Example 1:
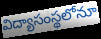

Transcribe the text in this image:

విద్యాసంస్థలోనూ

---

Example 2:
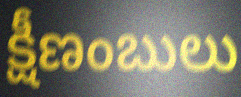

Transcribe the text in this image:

క్షీణంబులు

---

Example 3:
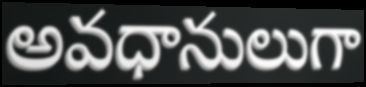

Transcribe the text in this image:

అవధానులుగా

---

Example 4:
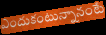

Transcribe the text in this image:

ఎందుకంటున్నానంటే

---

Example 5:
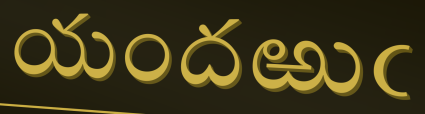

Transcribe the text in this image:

యందఱుఁ